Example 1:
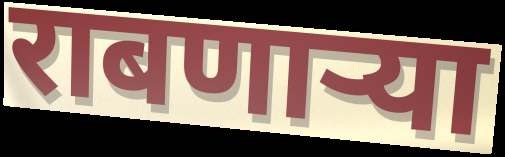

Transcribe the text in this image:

राबणार्‍या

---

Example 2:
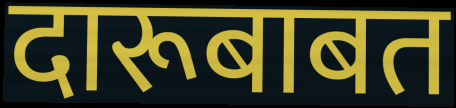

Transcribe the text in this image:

दारूबाबत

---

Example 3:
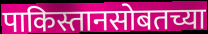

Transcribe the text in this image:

पाकिस्तानसोबतच्या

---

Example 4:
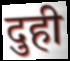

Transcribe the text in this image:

दुही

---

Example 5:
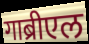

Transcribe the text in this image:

गाब्रीएल